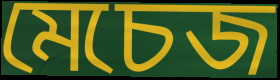
মেচেজ